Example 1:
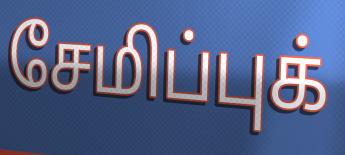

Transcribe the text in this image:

சேமிப்புக்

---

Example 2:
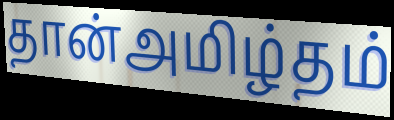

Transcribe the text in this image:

தான்அமிழ்தம்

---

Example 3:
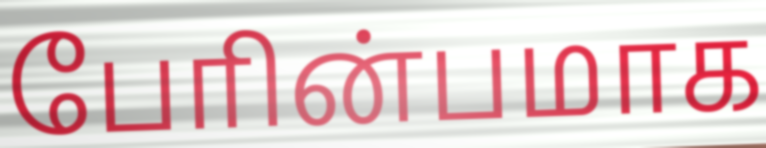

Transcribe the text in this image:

பேரின்பமாக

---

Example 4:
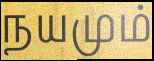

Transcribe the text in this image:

நயமும்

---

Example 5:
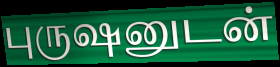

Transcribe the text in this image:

புருஷனுடன்